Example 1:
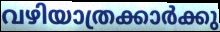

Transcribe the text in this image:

വഴിയാത്രക്കാർക്കു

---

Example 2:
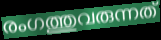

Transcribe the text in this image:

രംഗത്തുവരുന്നത്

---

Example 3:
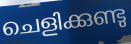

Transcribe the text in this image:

ചെളിക്കുണ്ടു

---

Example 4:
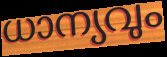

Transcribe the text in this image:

ധാന്യവും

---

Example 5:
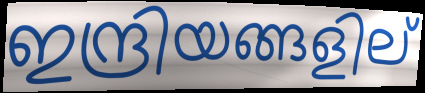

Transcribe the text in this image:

ഇന്ദ്രിയങ്ങളില്